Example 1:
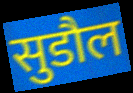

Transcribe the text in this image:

सुडौल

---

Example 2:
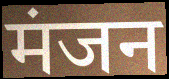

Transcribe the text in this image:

मंजन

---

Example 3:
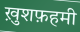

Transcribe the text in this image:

ख़ुशफ़हमी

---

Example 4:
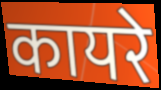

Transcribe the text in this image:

कायरे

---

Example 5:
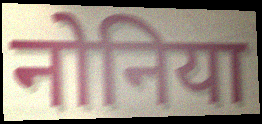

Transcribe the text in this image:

नोनिया